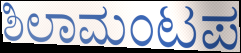
ಶಿಲಾಮಂಟಪ